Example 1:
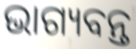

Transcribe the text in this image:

ଭାଗ୍ୟବନ୍ତ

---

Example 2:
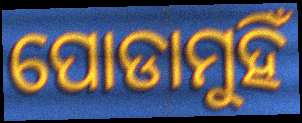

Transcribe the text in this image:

ପୋଡାମୁହିଁ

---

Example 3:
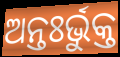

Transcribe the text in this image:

ଅନ୍ତଃର୍ଭୁକ୍ତ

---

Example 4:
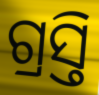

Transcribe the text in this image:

ଗ୍ରସ୍ତି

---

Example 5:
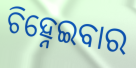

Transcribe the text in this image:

ଚିହ୍ନେଇବାର